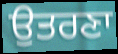
ਉਤਰਣਾ